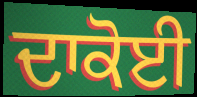
ਦਾਕੋਈ